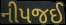
નીપજઈ